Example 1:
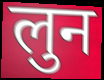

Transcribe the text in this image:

लुन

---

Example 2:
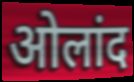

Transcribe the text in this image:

ओलांद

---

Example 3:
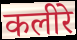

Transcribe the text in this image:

कलीरे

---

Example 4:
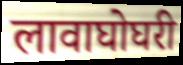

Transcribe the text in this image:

लावाघोघरी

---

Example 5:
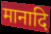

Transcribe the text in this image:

मानादि